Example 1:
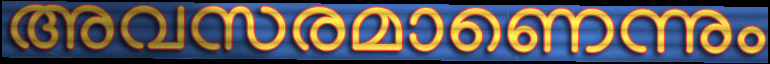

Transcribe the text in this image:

അവസരമാണെന്നും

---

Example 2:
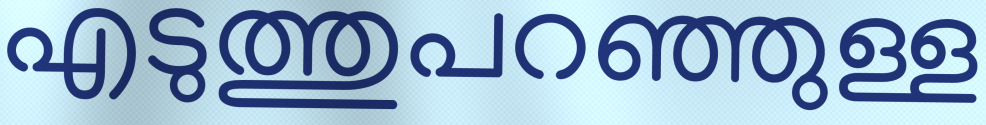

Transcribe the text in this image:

എടുത്തുപറഞ്ഞുള്ള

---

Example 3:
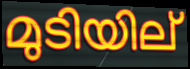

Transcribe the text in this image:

മുടിയില്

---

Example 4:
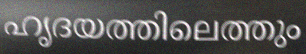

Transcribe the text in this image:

ഹൃദയത്തിലെത്തും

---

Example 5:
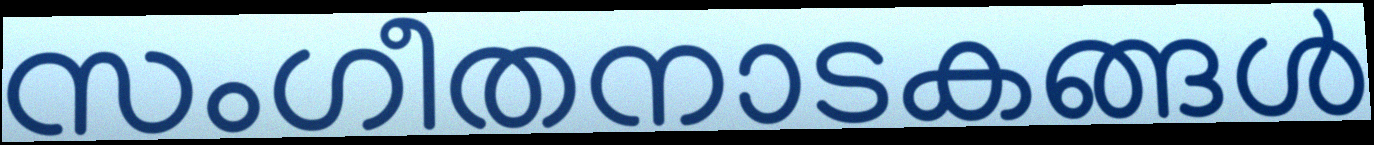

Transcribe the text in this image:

സംഗീതനാടകങ്ങൾ